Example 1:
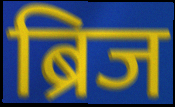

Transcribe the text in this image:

ब्रिज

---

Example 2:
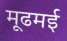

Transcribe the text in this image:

मूढमई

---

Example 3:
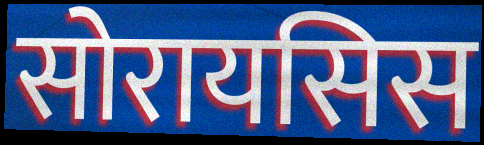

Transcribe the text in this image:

सोरायसिस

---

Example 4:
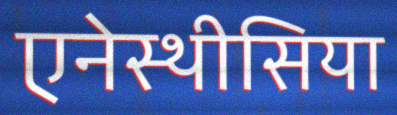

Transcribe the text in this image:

एनेस्थीसिया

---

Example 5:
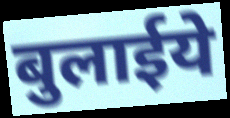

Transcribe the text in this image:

बुलाईये